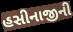
હસીનાજીની